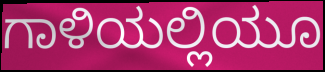
ಗಾಳಿಯಲ್ಲಿಯೂ